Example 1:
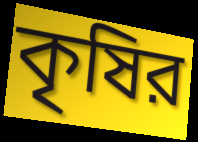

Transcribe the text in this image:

কৃষির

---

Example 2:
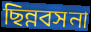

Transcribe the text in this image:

ছিন্নবসনা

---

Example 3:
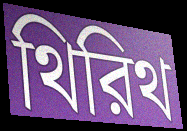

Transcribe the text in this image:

থিরিথ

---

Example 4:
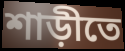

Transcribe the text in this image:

শাড়ীতে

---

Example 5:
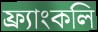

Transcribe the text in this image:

ফ্র্যাংকলি